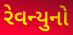
રેવન્યુનો